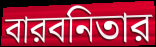
বারবনিতার